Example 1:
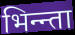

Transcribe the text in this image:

भिन्न्ता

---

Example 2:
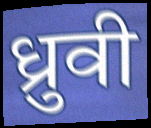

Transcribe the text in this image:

ध्रुवी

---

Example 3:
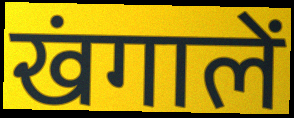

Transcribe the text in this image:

खंगालें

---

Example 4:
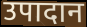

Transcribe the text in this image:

उपादान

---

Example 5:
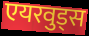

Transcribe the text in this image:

एयरवुड्स